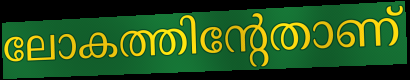
ലോകത്തിന്റേതാണ്